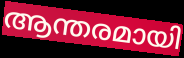
ആന്തരമായി